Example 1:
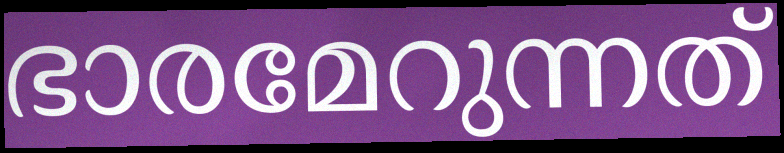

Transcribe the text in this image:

ഭാരമേറുന്നത്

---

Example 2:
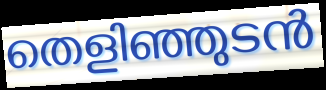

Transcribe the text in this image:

തെളിഞ്ഞുടൻ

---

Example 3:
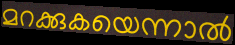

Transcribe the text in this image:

മറക്കുകയെന്നാൽ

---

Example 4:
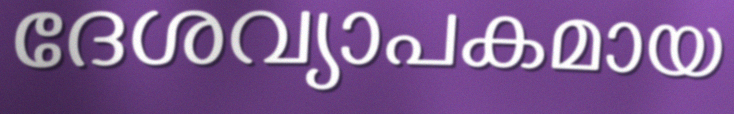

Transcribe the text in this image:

ദേശവ്യാപകമായ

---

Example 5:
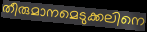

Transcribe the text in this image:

തീരുമാനമെടുക്കലിനെ